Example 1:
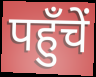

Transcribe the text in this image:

पहुँचें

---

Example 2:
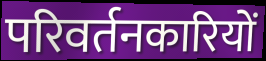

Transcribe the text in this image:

परिवर्तनकारियों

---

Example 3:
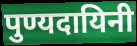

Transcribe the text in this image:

पुण्यदायिनी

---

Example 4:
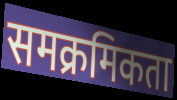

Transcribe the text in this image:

समक्रमिकता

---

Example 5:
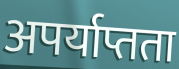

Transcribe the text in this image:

अपर्याप्तता